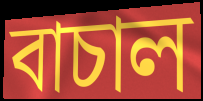
বাচাল